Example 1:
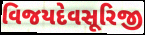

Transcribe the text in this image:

વિજયદેવસૂરિજી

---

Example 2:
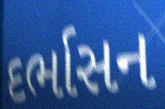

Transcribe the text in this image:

દર્ભાસન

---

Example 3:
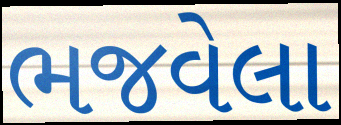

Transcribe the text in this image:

ભજવેલા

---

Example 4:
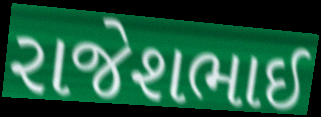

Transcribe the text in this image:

રાજેશભાઈ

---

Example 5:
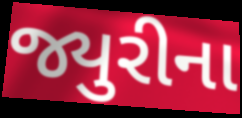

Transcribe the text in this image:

જ્યુરીના